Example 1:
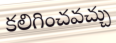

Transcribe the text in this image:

కలిగించవచ్చు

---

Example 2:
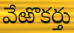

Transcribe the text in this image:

వేఱొకర్తు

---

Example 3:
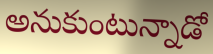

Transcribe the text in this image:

అనుకుంటున్నాడో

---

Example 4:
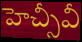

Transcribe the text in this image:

హెచ్సీవీ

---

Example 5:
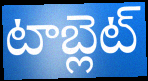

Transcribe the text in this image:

టాబ్లెట్